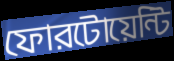
ফোরটোয়েন্টি